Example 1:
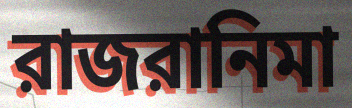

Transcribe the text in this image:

রাজরানিমা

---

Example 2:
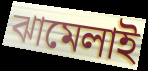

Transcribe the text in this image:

ঝামেলাই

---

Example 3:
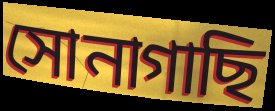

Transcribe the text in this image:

সোনাগাছি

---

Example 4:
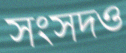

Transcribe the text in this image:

সংসদও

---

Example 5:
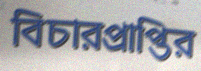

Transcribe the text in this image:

বিচারপ্রাপ্তির